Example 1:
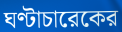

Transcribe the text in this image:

ঘণ্টাচারেকের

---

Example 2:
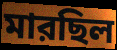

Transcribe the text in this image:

মারছিল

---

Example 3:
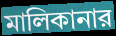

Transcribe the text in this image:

মালিকানার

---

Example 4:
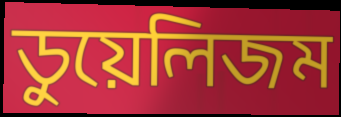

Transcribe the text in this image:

ডুয়েলিজম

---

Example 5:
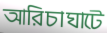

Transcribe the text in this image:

আরিচাঘাটে